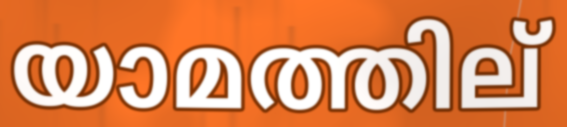
യാമത്തില്